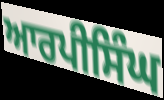
ਆਰਪੀਸਿੰਘ